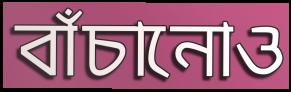
বাঁচানোও